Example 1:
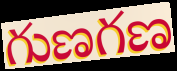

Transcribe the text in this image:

గుణగణ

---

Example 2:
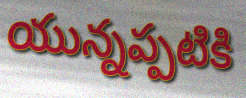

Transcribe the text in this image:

యున్నప్పటికి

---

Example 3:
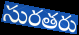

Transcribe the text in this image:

సురతరు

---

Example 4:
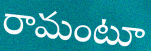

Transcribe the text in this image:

రామంటూ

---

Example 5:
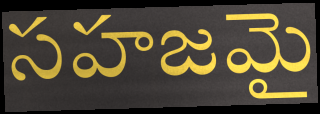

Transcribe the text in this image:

సహజమై